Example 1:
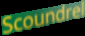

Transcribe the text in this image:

Scoundrel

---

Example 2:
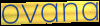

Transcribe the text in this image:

ovana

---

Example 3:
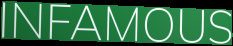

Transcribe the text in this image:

INFAMOUS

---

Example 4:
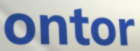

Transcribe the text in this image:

ontor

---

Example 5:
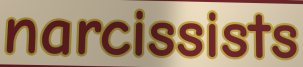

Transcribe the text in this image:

narcissists